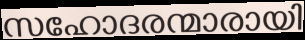
സഹോദരന്മാരായി